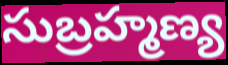
సుబ్రహ్మణ్య